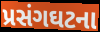
પ્રસંગઘટના